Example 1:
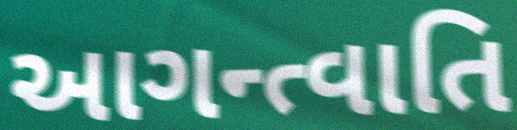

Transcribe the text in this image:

આગન્ત્વાતિ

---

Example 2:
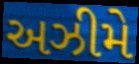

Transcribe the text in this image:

અઝીમે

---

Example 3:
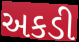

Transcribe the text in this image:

અકડી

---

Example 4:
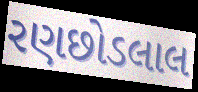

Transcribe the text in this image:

રણછોડલાલ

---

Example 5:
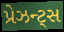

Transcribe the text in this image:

પ્રેઝન્ટ્સ